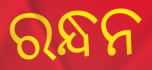
ରନ୍ଧନ